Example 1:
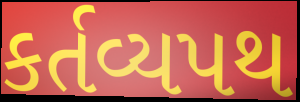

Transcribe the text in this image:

કર્તવ્યપથ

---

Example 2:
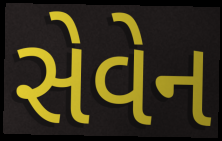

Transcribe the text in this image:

સેવેન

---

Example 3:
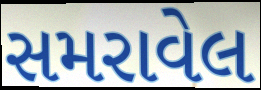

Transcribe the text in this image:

સમરાવેલ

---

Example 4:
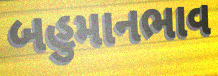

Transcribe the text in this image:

બહુમાનભાવ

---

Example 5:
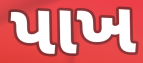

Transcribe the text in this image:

પાખ